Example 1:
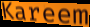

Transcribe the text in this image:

Kareem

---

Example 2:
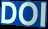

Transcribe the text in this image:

DOI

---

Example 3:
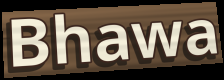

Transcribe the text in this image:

Bhawa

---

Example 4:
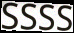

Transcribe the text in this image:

SSSS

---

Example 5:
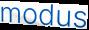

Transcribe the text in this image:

modus